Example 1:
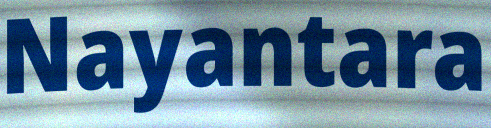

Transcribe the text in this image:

Nayantara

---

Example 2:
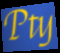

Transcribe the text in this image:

Pty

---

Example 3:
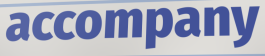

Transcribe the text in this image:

accompany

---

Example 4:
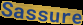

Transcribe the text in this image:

Sassure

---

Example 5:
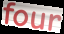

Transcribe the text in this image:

four